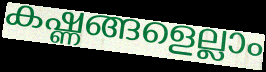
കഷ്ണങ്ങളെല്ലാം